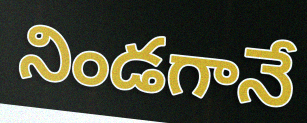
నిండగానే